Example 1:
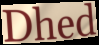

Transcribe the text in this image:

Dhed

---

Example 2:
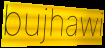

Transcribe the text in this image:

bujhawi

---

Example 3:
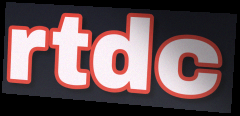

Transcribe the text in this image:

rtdc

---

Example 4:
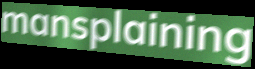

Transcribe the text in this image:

mansplaining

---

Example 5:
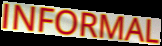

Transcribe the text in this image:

INFORMAL